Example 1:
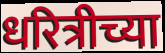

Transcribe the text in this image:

धरित्रीच्या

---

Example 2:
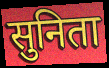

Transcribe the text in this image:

सुनिता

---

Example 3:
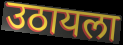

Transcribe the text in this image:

उठायला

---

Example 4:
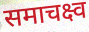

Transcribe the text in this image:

समाचक्ष्व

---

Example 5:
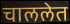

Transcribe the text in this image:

चाललेत